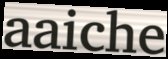
aaiche